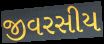
જીવરસીય